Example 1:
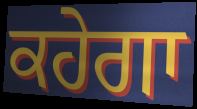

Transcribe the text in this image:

ਕਹੇਗਾ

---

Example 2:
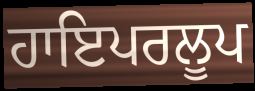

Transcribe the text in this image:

ਹਾਇਪਰਲੂਪ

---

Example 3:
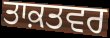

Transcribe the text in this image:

ਤਾਕ਼ਤਵਰ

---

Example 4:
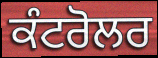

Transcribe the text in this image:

ਕੰਟਰੋਲਰ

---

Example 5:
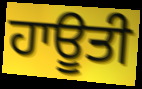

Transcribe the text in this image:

ਹਾਊਤੀ